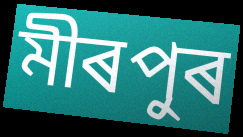
মীৰপুৰ